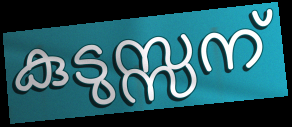
കുടുസ്സന്